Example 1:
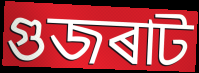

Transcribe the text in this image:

গুজৰাট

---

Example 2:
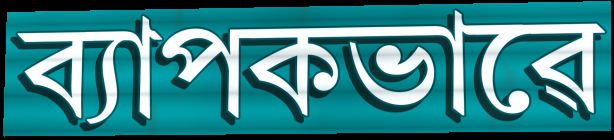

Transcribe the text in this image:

ব্যাপকভাৱে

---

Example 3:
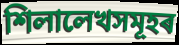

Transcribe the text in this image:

শিলালেখসমূহৰ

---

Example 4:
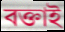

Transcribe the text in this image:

বক্তাই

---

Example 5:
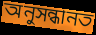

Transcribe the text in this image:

অনুসন্ধানত